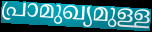
പ്രാമുഖ്യമുള്ള